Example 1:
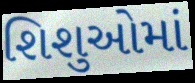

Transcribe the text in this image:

શિશુઓમાં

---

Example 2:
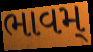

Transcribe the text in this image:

ભાવમ્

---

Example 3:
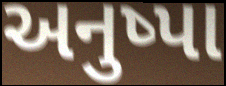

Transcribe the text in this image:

અનુષ્પા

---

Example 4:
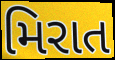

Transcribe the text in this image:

મિરાત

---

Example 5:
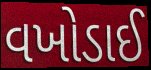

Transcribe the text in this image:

વખોડાઈ